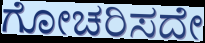
ಗೋಚರಿಸದೇ